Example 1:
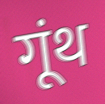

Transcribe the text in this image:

गूंथ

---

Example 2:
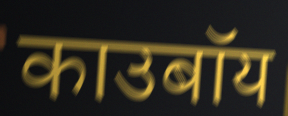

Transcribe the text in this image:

काउबॉय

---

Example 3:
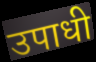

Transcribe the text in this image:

उपाधी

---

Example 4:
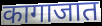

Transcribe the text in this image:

कागाजात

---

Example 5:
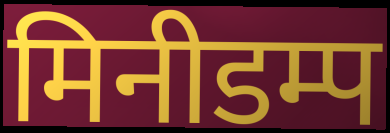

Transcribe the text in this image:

मिनीडम्प